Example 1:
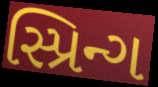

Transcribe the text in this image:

સ્પ્રિન્ગ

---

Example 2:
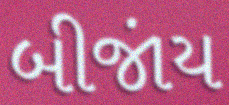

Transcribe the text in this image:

બીજાંય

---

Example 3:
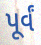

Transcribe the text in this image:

પૂર્વં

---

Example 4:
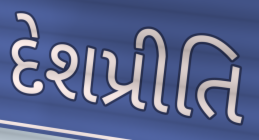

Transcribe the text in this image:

દેશપ્રીતિ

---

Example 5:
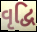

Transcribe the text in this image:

વૃદ્વિ